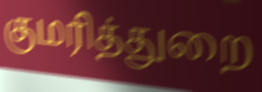
குமரித்துறை